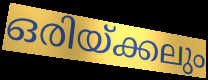
ഒരിയ്ക്കലും